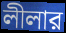
লীলার